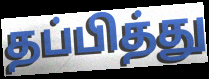
தப்பித்து